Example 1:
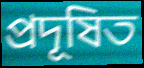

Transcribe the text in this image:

প্ৰদূষিত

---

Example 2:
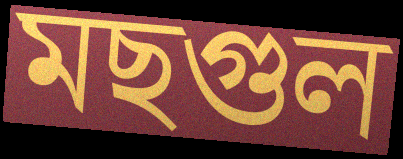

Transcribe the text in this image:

মছগুল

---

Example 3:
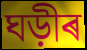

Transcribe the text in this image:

ঘড়ীৰ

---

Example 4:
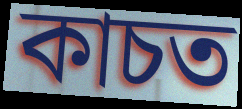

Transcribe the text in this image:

কাচত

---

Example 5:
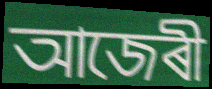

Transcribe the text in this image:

আজেৰী